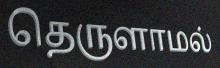
தெருளாமல்